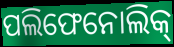
ପଲିଫେନୋଲିକ୍